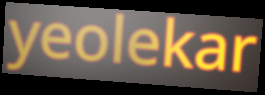
yeolekar